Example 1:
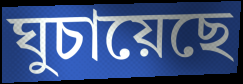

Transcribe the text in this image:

ঘুচায়েছে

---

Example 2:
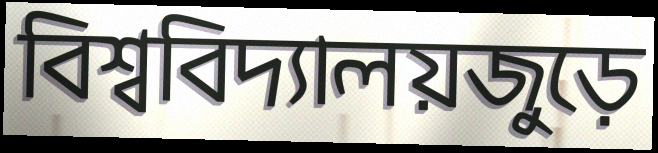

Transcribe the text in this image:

বিশ্ববিদ্যালয়জুড়ে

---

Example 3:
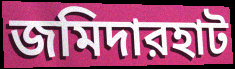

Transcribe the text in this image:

জমিদারহাট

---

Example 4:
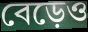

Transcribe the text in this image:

বেড়েও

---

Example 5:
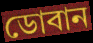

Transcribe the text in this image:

ডোবান